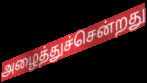
அழைத்துச்சென்றது